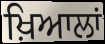
ਖ਼ਿਆਲਾਂ